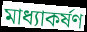
মাধ্যাকর্ষণ